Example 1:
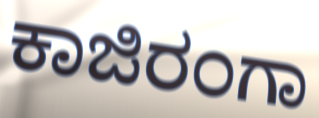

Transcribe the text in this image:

ಕಾಜಿರಂಗಾ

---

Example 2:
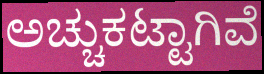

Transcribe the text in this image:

ಅಚ್ಚುಕಟ್ಟಾಗಿವೆ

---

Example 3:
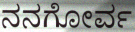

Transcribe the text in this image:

ನನಗೋರ್ವ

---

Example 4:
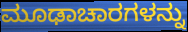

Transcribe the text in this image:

ಮೂಢಾಚಾರಗಳನ್ನು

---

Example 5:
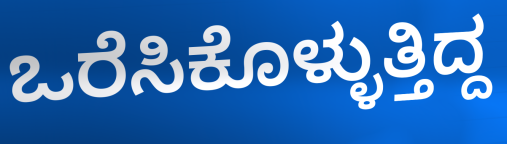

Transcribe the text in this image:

ಒರೆಸಿಕೊಳ್ಳುತ್ತಿದ್ದ